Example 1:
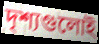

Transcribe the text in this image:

দৃশ্যগুলোই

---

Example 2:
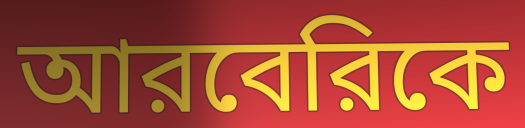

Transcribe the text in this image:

আরবেরিকে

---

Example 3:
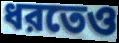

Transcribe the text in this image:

ধরতেও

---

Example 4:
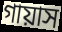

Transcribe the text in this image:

গায়াস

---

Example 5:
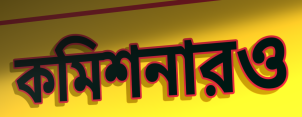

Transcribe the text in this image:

কমিশনারও